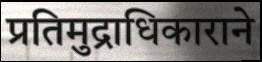
प्रतिमुद्राधिकाराने